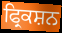
ਫ੍ਰਿਕਸ਼ਨ